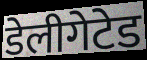
डेलीगेटेड